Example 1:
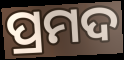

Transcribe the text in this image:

ପ୍ରମଦ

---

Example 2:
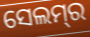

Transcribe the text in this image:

ସେଲମ୍‌ର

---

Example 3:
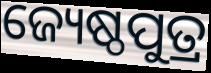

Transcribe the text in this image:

ଜ୍ୟେଷ୍ଠପୁତ୍ର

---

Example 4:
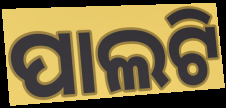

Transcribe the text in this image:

ପାଲଟି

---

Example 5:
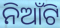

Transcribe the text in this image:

ନିଆଁଟି